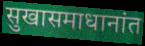
सुखासमाधानांत